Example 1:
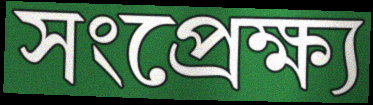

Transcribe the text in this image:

সংপ্রেক্ষ্য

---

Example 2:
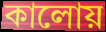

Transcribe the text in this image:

কালোয়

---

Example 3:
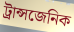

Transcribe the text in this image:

ট্রান্সজেনিক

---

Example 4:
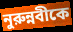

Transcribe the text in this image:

নুরুন্নবীকে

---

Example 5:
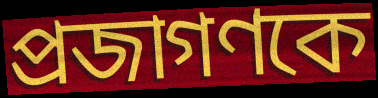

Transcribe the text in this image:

প্রজাগণকে